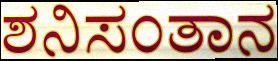
ಶನಿಸಂತಾನ